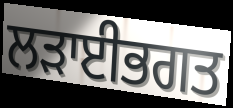
ਲੜਾਈਭਗਤ